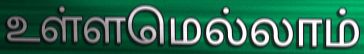
உள்ளமெல்லாம்